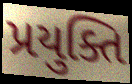
પ્રયુક્તિ